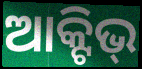
ଆକ୍ଟିଭ୍